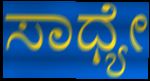
ಸಾಧ್ಯೇ